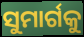
ସୁମାର୍ଗକୁ